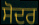
ਸੋਦਰ